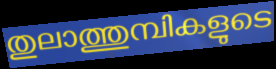
തുലാത്തുമ്പികളുടെ